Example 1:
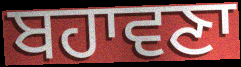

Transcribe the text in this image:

ਬਹਾਵਣਾ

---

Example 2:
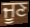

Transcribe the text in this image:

ਜੂਣ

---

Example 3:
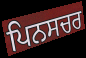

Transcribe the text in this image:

ਪਿਨਸਚਰ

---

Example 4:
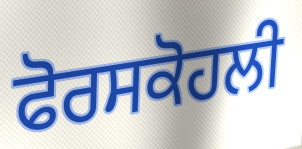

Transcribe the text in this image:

ਫੋਰਸਕੋਹਲੀ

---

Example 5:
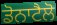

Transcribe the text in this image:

ਡੋਨਾਟੈਲੋ